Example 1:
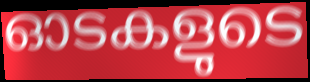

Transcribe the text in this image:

ഓടകളുടെ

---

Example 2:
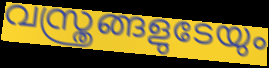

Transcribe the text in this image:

വസ്ത്രങ്ങളുടേയും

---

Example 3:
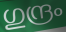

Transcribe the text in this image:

ഗുന്ദ്രം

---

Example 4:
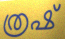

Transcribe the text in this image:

ത്രഷ്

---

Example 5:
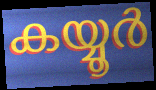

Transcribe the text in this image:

കയ്യൂർ